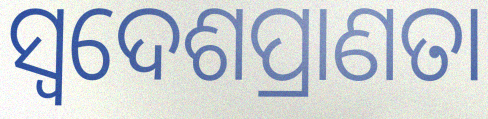
ସ୍ଵଦେଶପ୍ରାଣତା